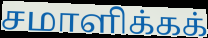
சமாளிக்கக்